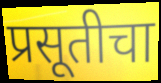
प्रसूतीचा